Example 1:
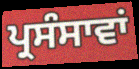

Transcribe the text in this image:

ਪ੍ਰਸੰਸਾਵਾਂ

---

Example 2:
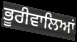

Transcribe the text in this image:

ਭੂਰੀਵਾਲਿਆਂ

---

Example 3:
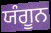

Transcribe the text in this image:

ਯੰਗੂਨ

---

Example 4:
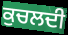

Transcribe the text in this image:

ਕੁਚਲਦੀ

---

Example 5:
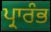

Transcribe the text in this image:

ਪ੍ਰਾਰੰਭ